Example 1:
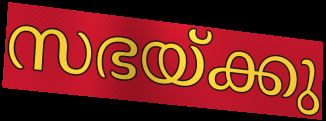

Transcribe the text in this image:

സഭയ്ക്കു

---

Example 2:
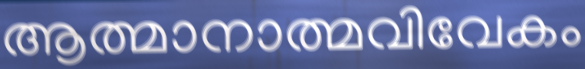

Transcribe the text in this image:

ആത്മാനാത്മവിവേകം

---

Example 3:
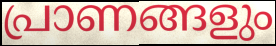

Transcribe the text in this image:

പ്രാണങ്ങളും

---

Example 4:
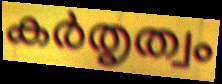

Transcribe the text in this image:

കർതൃത്വം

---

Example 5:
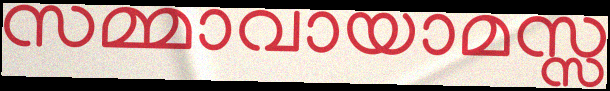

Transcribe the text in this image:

സമ്മാവായാമസ്സ